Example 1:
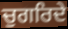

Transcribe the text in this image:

ਚੁਗਰਿਦੇ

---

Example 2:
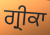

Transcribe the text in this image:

ਗ੍ਰੀਕਾ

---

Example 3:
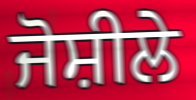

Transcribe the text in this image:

ਜੋਸ਼ੀਲੇ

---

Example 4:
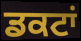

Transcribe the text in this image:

ਡਕਟਾਂ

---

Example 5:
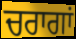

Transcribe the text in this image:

ਚਰਾਗਾਂ